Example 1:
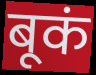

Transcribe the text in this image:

बूकं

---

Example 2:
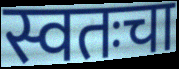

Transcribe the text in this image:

स्वतःचा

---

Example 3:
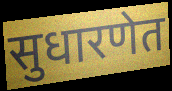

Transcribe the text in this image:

सुधारणेत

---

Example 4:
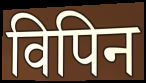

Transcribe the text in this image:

विपिन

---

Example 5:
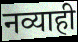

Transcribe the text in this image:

नव्याही